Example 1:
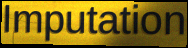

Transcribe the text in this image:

Imputation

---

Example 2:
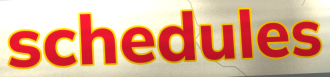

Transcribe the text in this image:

schedules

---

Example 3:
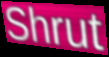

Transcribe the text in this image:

Shrut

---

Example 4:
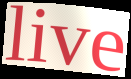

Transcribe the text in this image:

live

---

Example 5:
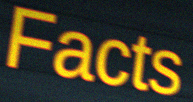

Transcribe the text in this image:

Facts